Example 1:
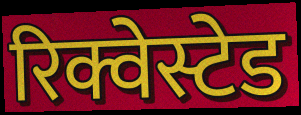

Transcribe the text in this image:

रिक्वेस्टेड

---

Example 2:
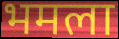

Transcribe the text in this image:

भमला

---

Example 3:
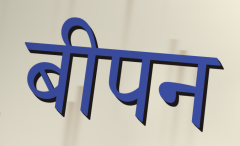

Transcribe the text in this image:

बीपन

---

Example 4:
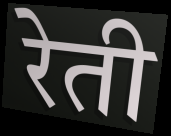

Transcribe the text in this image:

रेती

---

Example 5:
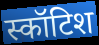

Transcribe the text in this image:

स्कॉटिश